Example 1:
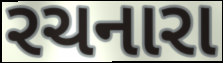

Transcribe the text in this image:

રચનારા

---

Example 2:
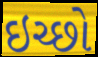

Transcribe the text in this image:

ઇચ્છો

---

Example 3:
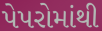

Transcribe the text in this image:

પેપરોમાંથી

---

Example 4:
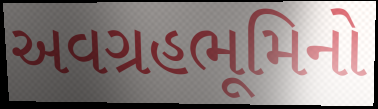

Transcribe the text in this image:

અવગ્રહભૂમિનો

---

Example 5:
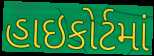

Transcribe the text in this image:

હાઇકોર્ટમાં